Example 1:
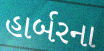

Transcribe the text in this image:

હાર્બરના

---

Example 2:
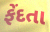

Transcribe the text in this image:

ફેંદતા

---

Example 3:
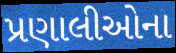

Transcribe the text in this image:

પ્રણાલીઓના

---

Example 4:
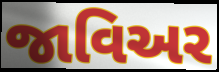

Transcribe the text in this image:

જાવિઅર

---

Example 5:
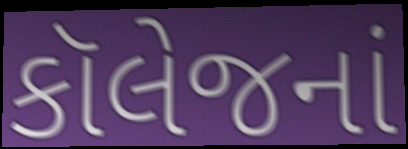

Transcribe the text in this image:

કૉલેજનાં